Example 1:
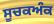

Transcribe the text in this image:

ਸੂਚਕਅੰਕ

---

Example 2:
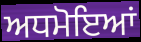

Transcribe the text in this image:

ਅਧਮੋਇਆਂ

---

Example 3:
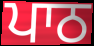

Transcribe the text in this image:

ਪਾਠ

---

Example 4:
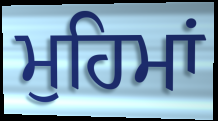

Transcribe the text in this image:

ਮੁਹਿਮਾਂ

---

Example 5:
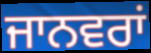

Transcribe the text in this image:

ਜਾਨਵਰਾਂ